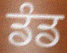
ਡੰਡ